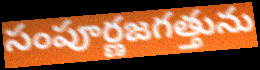
సంపూర్ణజగత్తును